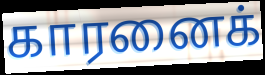
காரனைக்